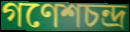
গণেশচন্দ্র